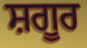
ਸ਼ਗੂਰ